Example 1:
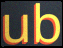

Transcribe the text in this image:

ub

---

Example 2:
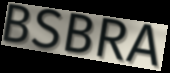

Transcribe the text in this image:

BSBRA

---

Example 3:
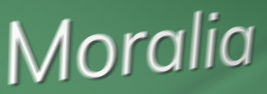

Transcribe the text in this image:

Moralia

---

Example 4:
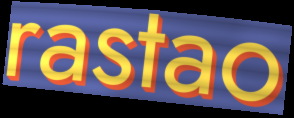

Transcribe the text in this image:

rastao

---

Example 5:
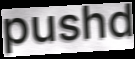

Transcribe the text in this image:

pushd